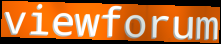
viewforum